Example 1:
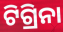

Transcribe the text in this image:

ଟିଗ୍ରିନା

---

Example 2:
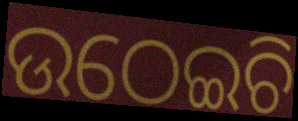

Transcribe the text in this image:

ଉଠେଇଚି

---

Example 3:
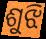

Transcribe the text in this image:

ଶୁଝି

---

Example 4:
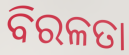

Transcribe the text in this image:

ବିରଳତା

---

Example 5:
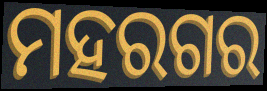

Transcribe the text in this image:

ମହରଗର